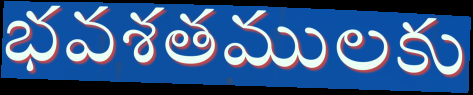
భవశతములకు